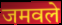
जमवले